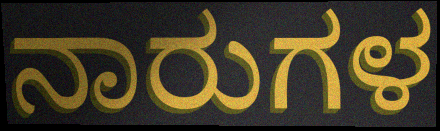
ನಾರುಗಳ